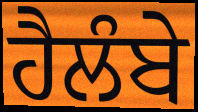
ਹੈਲੰਬੇ